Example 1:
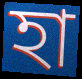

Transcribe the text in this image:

হা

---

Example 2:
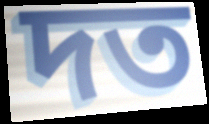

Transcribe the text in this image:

দত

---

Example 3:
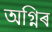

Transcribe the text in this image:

অগ্নিৰ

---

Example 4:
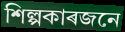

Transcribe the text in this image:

শিল্পকাৰজনে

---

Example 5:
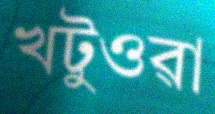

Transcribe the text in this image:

খটুওৱা